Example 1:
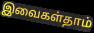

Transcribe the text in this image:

இவைகள்தாம்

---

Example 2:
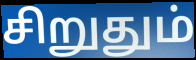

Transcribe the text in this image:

சிறுதும்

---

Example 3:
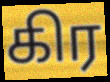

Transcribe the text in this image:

கிர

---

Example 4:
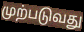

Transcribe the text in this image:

முற்படுவது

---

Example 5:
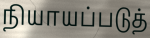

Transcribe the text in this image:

நியாயப்படுத்